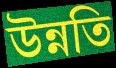
উন্নতি